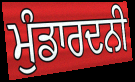
ਮੁੰਡਾਰਦਨੀ